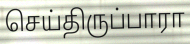
செய்திருப்பாரா